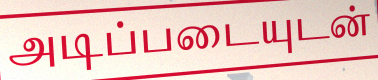
அடிப்படையுடன்